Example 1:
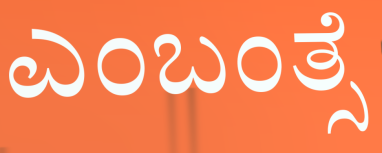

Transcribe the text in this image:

ಎಂಬಂತ್ಸೆ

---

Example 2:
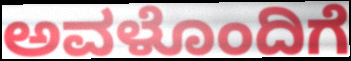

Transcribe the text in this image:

ಅವಳೊಂದಿಗೆ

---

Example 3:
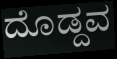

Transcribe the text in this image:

ದೊಡ್ದವ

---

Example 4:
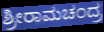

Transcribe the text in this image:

ಶ್ರೀರಾಮಚಂದ್ರ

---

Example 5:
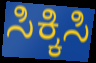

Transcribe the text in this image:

ಸಿಕ್ಕಿಸಿ